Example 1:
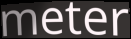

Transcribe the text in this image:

meter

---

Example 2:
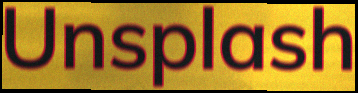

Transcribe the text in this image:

Unsplash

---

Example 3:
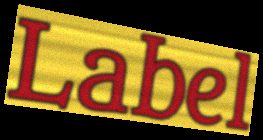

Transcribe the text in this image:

Label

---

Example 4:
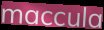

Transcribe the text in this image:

maccula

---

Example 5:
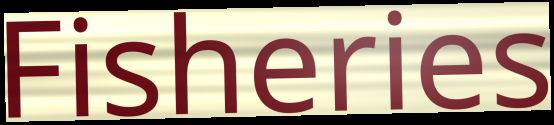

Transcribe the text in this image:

Fisheries